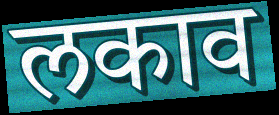
लकाव